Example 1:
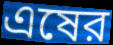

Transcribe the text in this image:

এষের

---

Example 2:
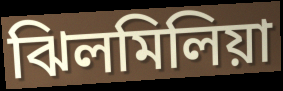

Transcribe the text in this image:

ঝিলমিলিয়া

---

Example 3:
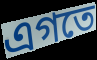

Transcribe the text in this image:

এগতে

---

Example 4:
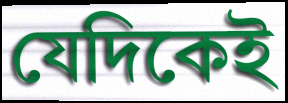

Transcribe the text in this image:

যেদিকেই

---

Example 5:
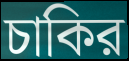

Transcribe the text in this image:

চাকির